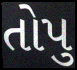
તોપુ